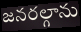
జనరల్గాను